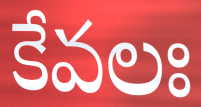
కేవలః